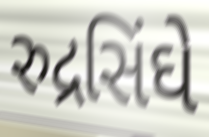
રુદ્રસિંઘે